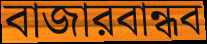
বাজারবান্ধব